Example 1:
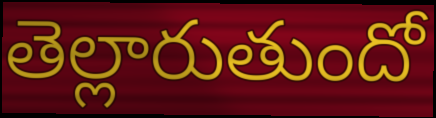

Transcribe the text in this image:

తెల్లారుతుందో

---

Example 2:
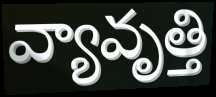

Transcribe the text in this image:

వ్యావృత్తి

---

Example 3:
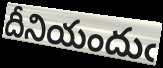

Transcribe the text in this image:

దీనియందుఁ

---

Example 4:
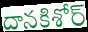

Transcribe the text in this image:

దానకిశోర్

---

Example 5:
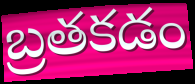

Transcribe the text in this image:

బ్రతకడం